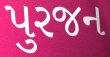
પુરજન